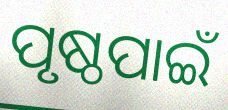
ପୃଷ୍ଠପାଇଁ